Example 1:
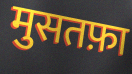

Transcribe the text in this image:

मुसतफ़ा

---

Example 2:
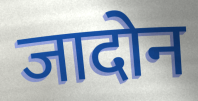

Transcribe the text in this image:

जादोन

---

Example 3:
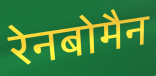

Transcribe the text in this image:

रेनबोमैन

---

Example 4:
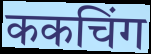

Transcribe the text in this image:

ककचिंग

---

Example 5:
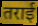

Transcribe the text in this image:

तराई